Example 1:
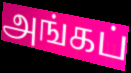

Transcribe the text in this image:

அங்கப்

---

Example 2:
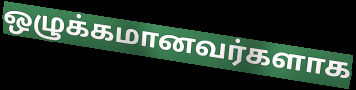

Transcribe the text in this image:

ஒழுக்கமானவர்களாக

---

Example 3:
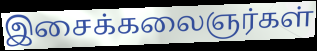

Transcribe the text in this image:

இசைக்கலைஞர்கள்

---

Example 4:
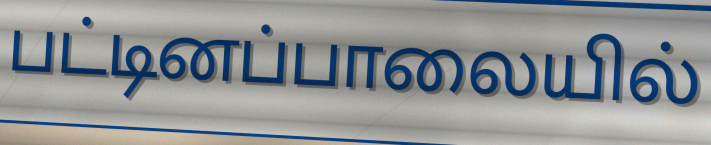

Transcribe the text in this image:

பட்டினப்பாலையில்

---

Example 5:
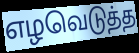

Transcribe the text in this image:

எழவெடுத்த